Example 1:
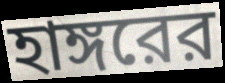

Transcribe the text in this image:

হাঙ্গরের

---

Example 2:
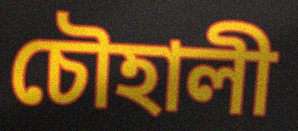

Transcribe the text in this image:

চৌহালী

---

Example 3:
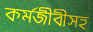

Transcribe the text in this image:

কর্মজীবীসহ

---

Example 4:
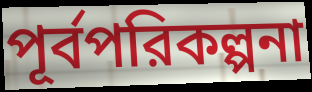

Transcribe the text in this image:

পূর্বপরিকল্পনা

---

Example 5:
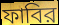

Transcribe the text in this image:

ফাবির